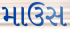
માઉસ